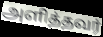
அளித்தவர்